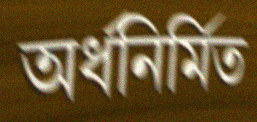
অর্ধনির্মিত